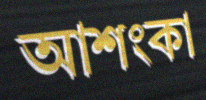
আশংকা